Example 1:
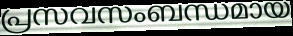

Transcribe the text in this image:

പ്രസവസംബന്ധമായ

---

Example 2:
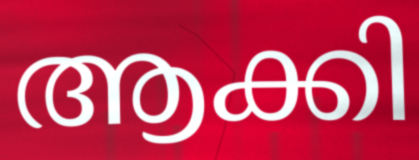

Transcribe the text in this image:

ആക്കി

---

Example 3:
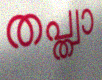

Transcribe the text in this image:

തപ്ത്വാ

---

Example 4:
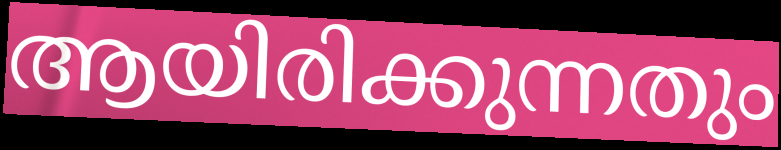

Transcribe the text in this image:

ആയിരിക്കുന്നതും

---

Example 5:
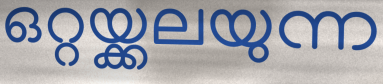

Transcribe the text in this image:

ഒറ്റയ്ക്കലയുന്ന